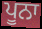
ਪੂਨਾ